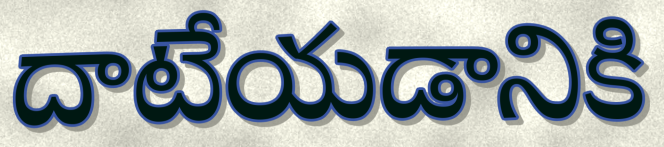
దాటేయడానికి